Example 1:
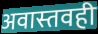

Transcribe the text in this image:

अवास्तवही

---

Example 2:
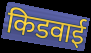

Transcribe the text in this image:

किडवाई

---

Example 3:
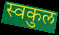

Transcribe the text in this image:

स्वकुल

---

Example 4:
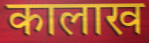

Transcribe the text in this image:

कालाख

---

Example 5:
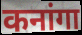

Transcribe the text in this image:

कनांगा